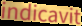
indicavit